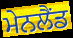
ਮੇਨਲੈਂਡ